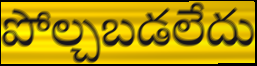
పోల్చబడలేదు